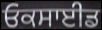
ਓਕਸਾਈਡ